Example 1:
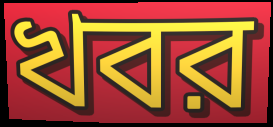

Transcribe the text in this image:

খবর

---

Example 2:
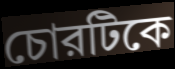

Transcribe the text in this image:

চোরটিকে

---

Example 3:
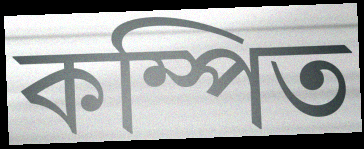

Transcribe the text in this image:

কম্পিত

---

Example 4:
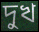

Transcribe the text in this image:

দুখ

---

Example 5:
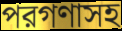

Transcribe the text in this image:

পরগণাসহ